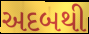
અદબથી